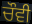
ਚੌਵੀ